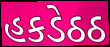
હકડેઠઠ